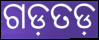
ଗଡ଼ତଡ଼